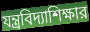
যন্ত্রবিদ্যাশিক্ষার